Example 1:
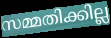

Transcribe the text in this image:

സമ്മതിക്കില്ല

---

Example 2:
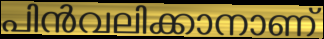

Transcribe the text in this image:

പിൻവലിക്കാനാണ്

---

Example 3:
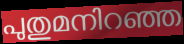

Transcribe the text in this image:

പുതുമനിറഞ്ഞ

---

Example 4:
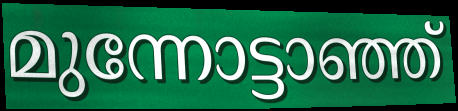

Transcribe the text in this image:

മുന്നോട്ടാഞ്ഞ്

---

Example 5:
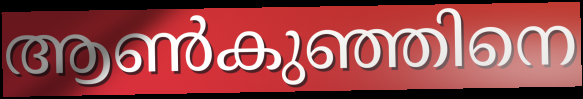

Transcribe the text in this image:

ആൺകുഞ്ഞിനെ